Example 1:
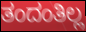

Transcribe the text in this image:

ತಂದಂತಿಲ್ಲ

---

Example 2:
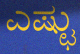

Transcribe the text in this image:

ಎಷ್ಟು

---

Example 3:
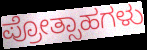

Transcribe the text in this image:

ಪ್ರೋತ್ಸಾಹಗಳು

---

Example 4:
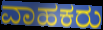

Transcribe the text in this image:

ವಾಹಕರು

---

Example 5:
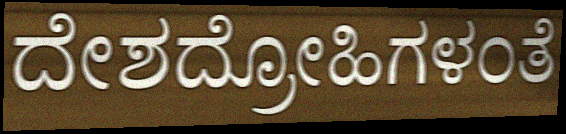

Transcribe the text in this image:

ದೇಶದ್ರೋಹಿಗಳಂತೆ